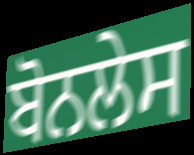
ਬੋਨਲੇਸ